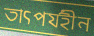
তাৎপর্যহীন